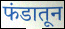
फंडातून